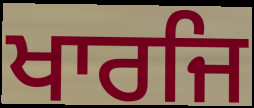
ਖਾਰਜਿ